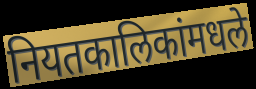
नियतकालिकांमधले